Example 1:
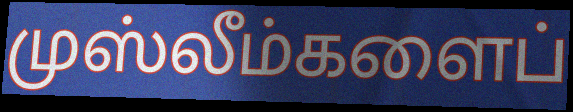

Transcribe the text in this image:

முஸ்லீம்களைப்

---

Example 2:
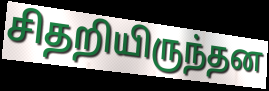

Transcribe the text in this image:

சிதறியிருந்தன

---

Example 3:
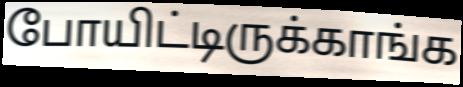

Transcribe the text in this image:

போயிட்டிருக்காங்க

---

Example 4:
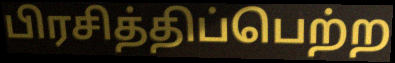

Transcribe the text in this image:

பிரசித்திப்பெற்ற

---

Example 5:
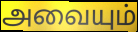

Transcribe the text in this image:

அவையும்